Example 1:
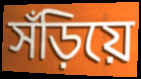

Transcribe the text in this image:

সঁড়িয়ে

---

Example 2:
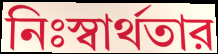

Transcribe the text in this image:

নিঃস্বার্থতার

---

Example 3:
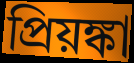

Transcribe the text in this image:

প্রিয়ঙ্কা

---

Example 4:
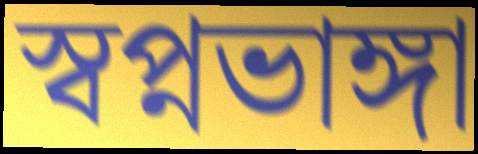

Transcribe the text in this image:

স্বপ্নভাঙ্গা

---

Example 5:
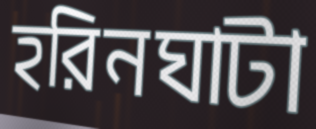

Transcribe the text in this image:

হরিনঘাটা